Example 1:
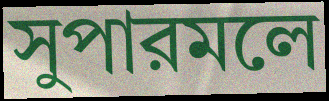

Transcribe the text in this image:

সুপারমলে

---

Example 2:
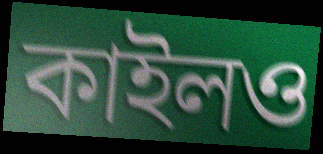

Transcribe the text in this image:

কাইলও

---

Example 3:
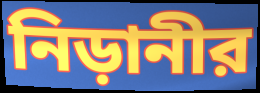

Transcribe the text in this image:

নিড়ানীর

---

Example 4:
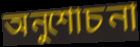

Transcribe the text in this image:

অনুশোচনা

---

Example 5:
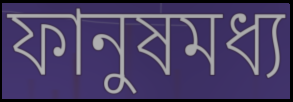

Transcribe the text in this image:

ফানুষমধ্য